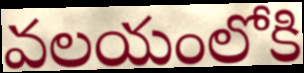
వలయంలోకి